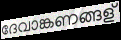
ദേവാങ്കണങ്ങള്